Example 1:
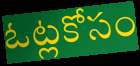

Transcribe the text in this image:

ఓట్లకోసం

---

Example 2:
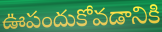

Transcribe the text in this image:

ఊపందుకోవడానికి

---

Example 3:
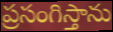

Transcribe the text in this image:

ప్రసంగిస్తాను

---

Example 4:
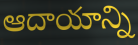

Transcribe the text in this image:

ఆదాయాన్ని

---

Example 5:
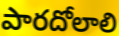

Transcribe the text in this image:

పారదోలాలి